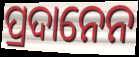
ପ୍ରଦାନେନ